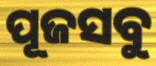
ପୂଜସବୁ